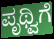
ಪೃಥ್ವಿಗೆ